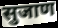
सुजाण